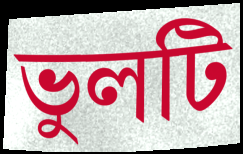
ভুলটি